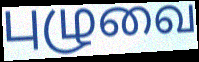
புழுவை